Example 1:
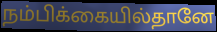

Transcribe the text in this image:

நம்பிக்கையில்தானே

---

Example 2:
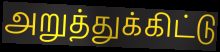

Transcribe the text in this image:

அறுத்துக்கிட்டு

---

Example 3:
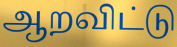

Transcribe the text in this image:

ஆறவிட்டு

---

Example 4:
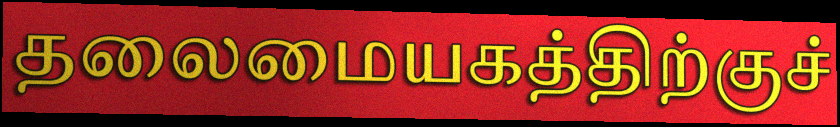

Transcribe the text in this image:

தலைமையகத்திற்குச்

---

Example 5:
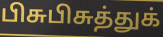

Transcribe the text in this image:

பிசுபிசுத்துக்